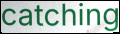
catching